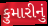
કુમારીનું